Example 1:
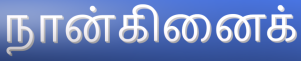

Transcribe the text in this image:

நான்கினைக்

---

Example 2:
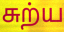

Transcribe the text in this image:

சுற்ய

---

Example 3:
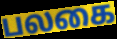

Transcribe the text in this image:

பலகை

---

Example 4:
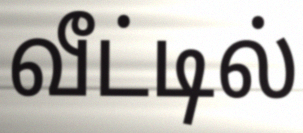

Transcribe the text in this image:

வீட்டில்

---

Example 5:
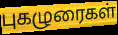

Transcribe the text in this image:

புகழுரைகள்